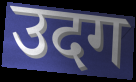
उदग